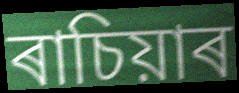
ৰাচিয়াৰ